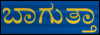
ಬಾಗುತ್ತಾ